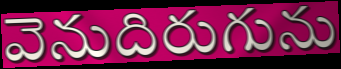
వెనుదిరుగును